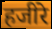
हजीरे